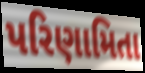
પરિણામિતા